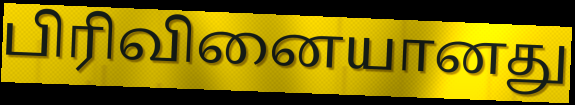
பிரிவினையானது